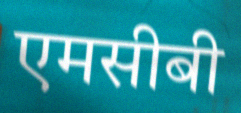
एमसीबी